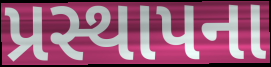
પ્રસ્થાપના